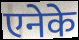
एनेके